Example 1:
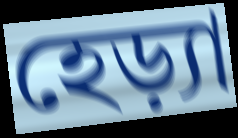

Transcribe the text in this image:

হেড়্যা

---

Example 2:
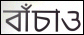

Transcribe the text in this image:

বাঁচাও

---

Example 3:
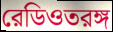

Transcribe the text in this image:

রেডিওতরঙ্গ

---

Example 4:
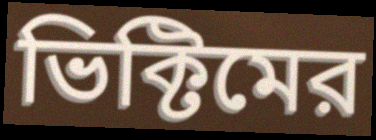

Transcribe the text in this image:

ভিক্টিমের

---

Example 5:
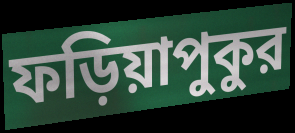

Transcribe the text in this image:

ফড়িয়াপুকুর